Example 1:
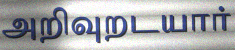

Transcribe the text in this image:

அறிவுறடயார்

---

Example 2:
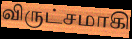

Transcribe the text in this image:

விருட்சமாகி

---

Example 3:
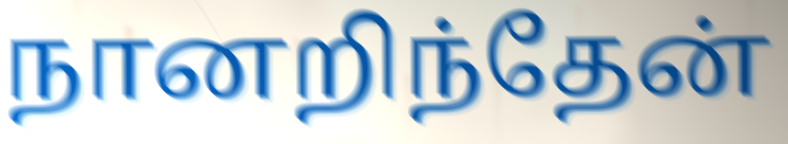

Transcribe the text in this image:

நானறிந்தேன்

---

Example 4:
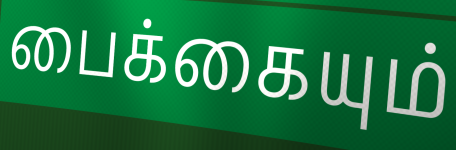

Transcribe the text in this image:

பைக்கையும்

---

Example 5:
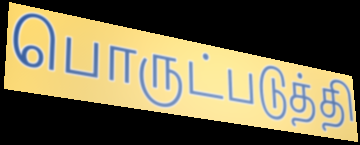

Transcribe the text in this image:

பொருட்படுத்தி